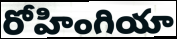
రోహింగియా